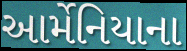
આર્મેનિયાના